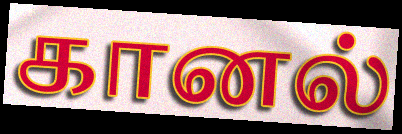
கானல்